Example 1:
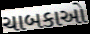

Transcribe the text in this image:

ચાબકાઓ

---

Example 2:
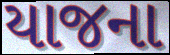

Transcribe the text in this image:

યાજના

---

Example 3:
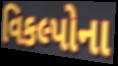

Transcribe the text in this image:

વિકલ્પોના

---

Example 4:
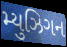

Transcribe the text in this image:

મ્યુઝિગન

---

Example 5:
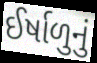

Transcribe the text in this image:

ઈર્ષાળુનું